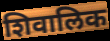
शिवालिक